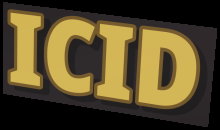
ICID